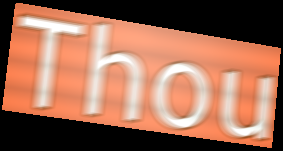
Thou